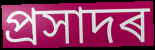
প্ৰসাদৰ